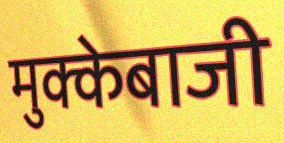
मुक्केबाजी